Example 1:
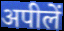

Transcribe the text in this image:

अपीलें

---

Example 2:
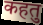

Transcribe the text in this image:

कहतु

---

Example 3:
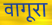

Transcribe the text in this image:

वागूरा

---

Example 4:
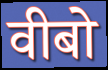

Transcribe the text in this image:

वीबो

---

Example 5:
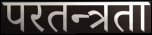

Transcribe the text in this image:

परतन्त्रता